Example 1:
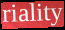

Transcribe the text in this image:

riality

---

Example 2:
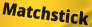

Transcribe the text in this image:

Matchstick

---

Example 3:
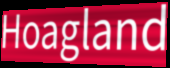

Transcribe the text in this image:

Hoagland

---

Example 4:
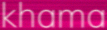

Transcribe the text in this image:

khama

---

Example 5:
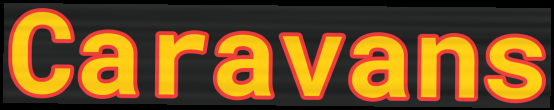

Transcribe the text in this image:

Caravans